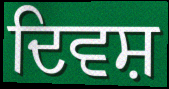
ਦਿਵਸ਼